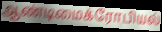
ஆண்டிமைக்ரோபியல்